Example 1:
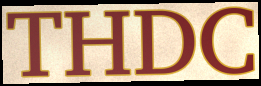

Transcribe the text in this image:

THDC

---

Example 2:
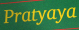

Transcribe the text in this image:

Pratyaya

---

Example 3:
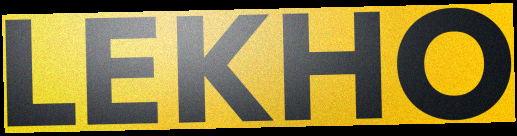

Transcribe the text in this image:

LEKHO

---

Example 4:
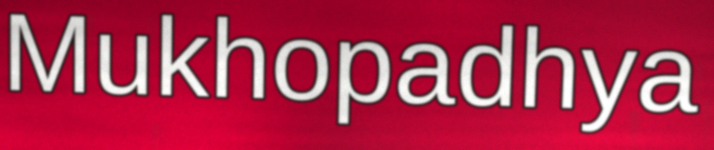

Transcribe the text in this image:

Mukhopadhya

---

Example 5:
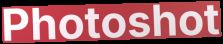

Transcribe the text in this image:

Photoshot